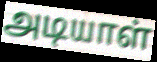
அடியாள்